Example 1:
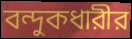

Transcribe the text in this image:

বন্দুকধারীর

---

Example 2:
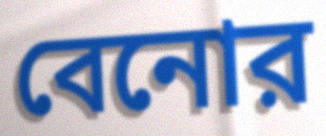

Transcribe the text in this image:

বেনোর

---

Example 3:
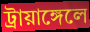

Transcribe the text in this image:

ট্রায়াঙ্গেলে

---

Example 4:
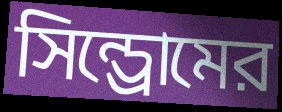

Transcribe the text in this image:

সিন্ড্রোমের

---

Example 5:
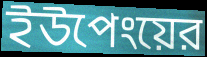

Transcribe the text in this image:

ইউপেংয়ের